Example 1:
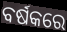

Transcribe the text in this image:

ବର୍ଷକରେ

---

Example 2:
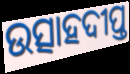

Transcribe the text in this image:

ଉତ୍ସାହଦୀପ୍ତ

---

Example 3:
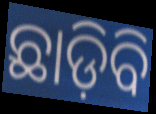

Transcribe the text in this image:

ଛାଡ଼ିବି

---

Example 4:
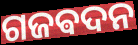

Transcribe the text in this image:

ଗଜଵଦନ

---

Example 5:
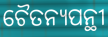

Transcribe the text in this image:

ଚୈତନ୍ୟପନ୍ଥୀ